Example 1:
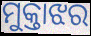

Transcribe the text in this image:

ମୁକ୍ତାଝର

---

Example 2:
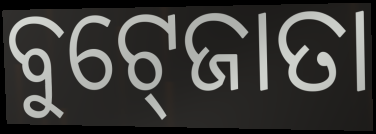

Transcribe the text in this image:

ବୁଟ୍‍ଜୋତା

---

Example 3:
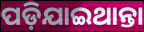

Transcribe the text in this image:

ପଡ଼ିଯାଇଥାନ୍ତା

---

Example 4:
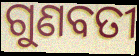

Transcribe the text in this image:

ଗୁଣବତୀ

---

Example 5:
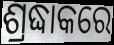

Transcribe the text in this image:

ଶ୍ରଦ୍ଧାକରେ